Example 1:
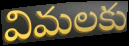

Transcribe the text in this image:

విమలకు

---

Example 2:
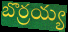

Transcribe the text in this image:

బొర్రయ్య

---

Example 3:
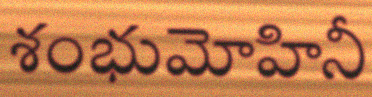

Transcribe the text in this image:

శంభుమోహినీ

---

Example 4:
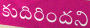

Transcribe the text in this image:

కుదిరిందని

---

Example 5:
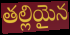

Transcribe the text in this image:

తల్లియైన